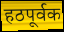
हठपूर्वक